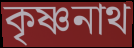
কৃষ্ণনাথ